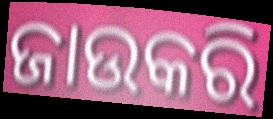
ଜାଉକରି